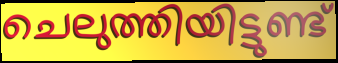
ചെലുത്തിയിട്ടുണ്ട്